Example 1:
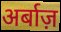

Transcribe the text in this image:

अर्बाज़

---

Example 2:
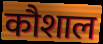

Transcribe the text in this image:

कौशाल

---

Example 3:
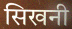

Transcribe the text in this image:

सिखनी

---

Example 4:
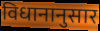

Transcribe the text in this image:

विधानानुसार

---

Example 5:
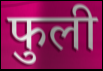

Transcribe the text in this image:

फुली